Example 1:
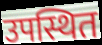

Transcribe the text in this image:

उपस्थित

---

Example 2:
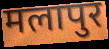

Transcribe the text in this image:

मलापुर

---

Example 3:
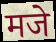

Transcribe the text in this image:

मजे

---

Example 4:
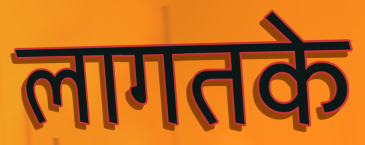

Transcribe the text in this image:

लागतके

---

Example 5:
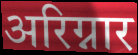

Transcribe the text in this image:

अरिग्नार